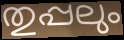
തുപ്പലും